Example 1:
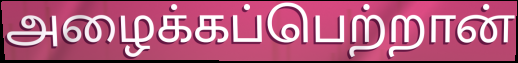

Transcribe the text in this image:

அழைக்கப்பெற்றான்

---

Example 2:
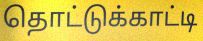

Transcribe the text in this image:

தொட்டுக்காட்டி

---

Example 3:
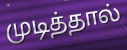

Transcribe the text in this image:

முடித்தால்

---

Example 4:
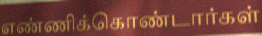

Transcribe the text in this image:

எண்ணிக்கொண்டார்கள்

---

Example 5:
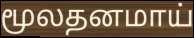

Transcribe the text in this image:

மூலதனமாய்